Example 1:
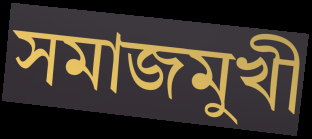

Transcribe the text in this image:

সমাজমুখী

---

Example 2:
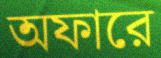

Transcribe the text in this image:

অফারে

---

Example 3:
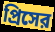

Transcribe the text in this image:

প্রিসের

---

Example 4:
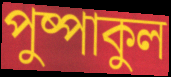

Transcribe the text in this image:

পুষ্পাকুল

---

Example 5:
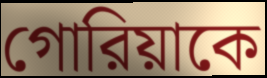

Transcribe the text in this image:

গোরিয়াকে